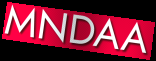
MNDAA